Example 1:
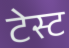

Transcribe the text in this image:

टेस्‍ट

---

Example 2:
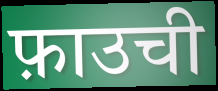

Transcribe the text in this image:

फ़ाउची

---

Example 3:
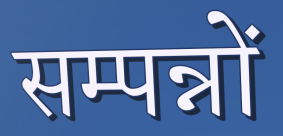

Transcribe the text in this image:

सम्पन्नों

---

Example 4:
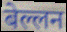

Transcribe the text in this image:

बेल्लन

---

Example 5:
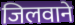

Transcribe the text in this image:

जिलवाने